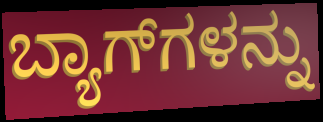
ಬ್ಯಾಗ್‌ಗಳನ್ನು